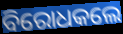
ବିରୋଧକଲେ